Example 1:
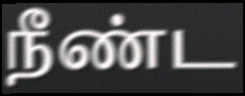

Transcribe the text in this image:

நீண்ட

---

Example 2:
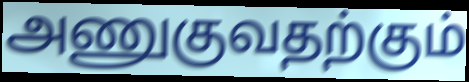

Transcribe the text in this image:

அணுகுவதற்கும்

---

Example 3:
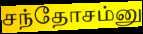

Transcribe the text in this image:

சந்தோசம்னு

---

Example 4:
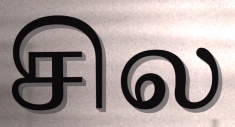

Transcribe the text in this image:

சில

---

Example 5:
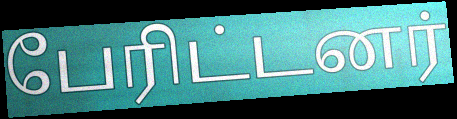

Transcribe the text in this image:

பேரிட்டனர்